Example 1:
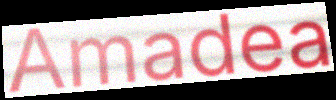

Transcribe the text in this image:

Amadea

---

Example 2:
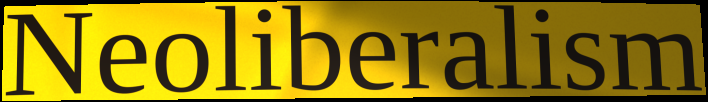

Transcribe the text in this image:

Neoliberalism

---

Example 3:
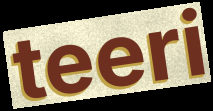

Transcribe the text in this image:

teeri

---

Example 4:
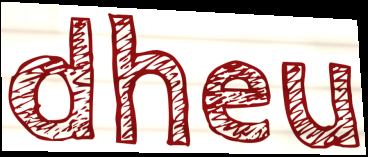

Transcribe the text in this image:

dheu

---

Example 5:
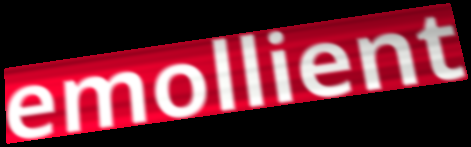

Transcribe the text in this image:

emollient